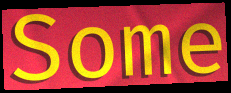
Some